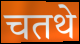
चतथे